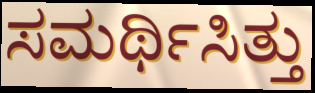
ಸಮರ್ಥಿಸಿತ್ತು